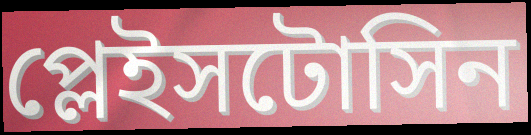
প্লেইসটোসিন